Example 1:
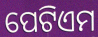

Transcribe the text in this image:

ପେଟିଏମ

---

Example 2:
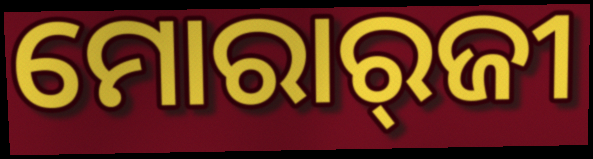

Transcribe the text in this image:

ମୋରାର୍‌ଜୀ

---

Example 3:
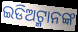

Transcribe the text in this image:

ଇଡିଅଟ୍ମାନଙ୍କ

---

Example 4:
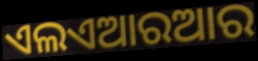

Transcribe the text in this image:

ଏଲଏଆରଆର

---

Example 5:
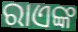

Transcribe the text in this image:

ରାଏଙ୍କ